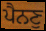
ਪੈਨਣੁ